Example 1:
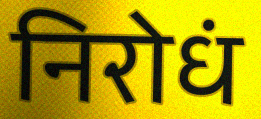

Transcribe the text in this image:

निरोधं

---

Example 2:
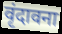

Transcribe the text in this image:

वृंदावना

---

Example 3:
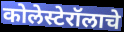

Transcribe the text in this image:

कोलेस्टेरॉलाचे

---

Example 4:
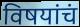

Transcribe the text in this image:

विषयांचं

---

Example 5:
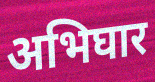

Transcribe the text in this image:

अभिघार